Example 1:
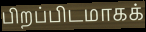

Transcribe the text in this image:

பிறப்பிடமாகக்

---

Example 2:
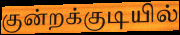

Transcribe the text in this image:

குன்றக்குடியில்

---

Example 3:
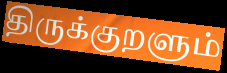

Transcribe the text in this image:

திருக்குறளும்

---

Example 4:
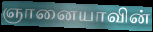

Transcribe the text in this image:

ஞானையாவின்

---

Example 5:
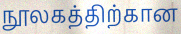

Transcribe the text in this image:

நூலகத்திற்கான